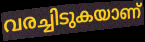
വരച്ചിടുകയാണ്